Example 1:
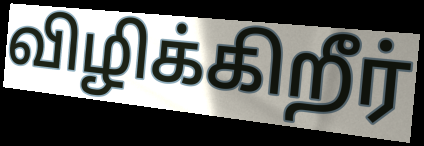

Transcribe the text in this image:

விழிக்கிறீர்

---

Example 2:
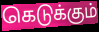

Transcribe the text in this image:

கெடுக்கும்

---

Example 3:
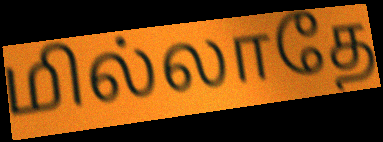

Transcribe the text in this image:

மில்லாதே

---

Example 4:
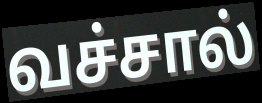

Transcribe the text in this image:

வச்சால்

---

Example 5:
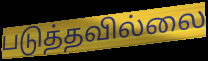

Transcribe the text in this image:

படுத்தவில்லை